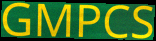
GMPCS